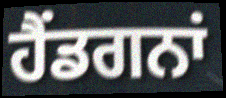
ਹੈਂਡਗਨਾਂ